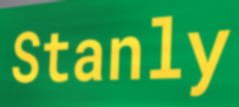
Stanly